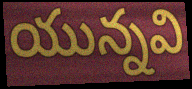
యున్నవి